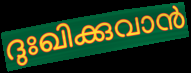
ദുഃഖിക്കുവാൻ